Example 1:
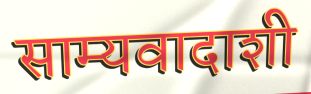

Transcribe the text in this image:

साम्यवादाशी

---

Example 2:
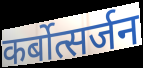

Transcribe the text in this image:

कर्बोत्सर्जन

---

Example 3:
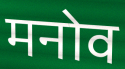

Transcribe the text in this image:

मनोव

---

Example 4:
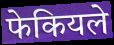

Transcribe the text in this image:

फेकियले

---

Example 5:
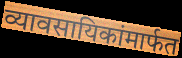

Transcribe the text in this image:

व्यावसायिकांमार्फत